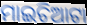
ମାଇଚିଆଟା